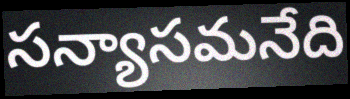
సన్యాసమనేది